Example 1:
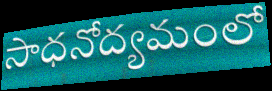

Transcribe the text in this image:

సాధనోద్యమంలో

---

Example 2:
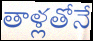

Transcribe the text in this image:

తాళ్లతోనే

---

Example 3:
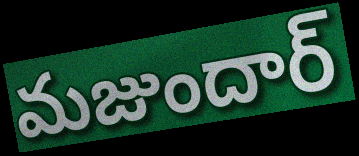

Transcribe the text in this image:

మజుందార్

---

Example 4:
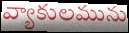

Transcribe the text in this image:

వ్యాకులమును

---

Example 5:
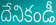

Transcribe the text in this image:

దేనికండీ